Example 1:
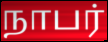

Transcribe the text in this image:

நாபர்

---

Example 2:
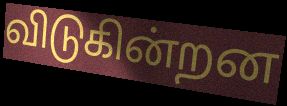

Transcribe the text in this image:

விடுகின்றன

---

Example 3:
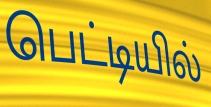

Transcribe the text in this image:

பெட்டியில்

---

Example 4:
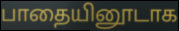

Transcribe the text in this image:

பாதையினூடாக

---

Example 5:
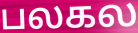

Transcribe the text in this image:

பலகல